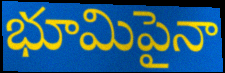
భూమిపైనా